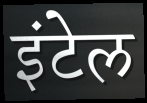
इंटेल